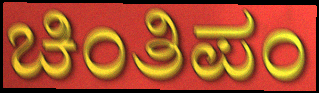
ಚಿಂತಿಪಂ